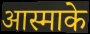
आस्माके